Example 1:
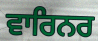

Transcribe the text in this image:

ਵਾਰਿਨਰ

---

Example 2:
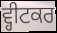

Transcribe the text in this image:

ਵ੍ਹੀਟਕਰ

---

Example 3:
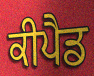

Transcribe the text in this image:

ਕੀਪੈਡ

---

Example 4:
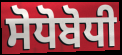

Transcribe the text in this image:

ਸੋਧੋਬੋਧੀ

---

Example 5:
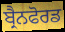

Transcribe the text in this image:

ਬ੍ਰੈਨਫੋਰਡ